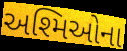
અશ્મિઓના